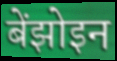
बेंझोइन